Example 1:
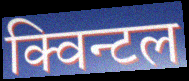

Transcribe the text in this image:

क्विन्टल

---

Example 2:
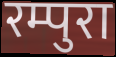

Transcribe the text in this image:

रम्पुरा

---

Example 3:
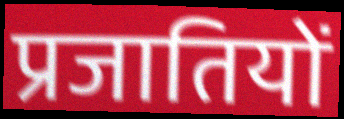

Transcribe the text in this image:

प्रजातियों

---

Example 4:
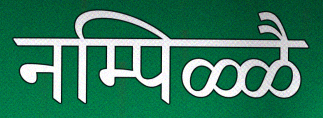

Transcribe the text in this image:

नम्पिळ्ळै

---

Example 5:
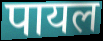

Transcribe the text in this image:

पायल